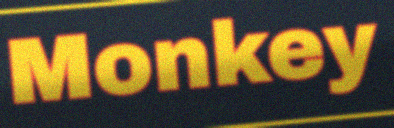
Monkey